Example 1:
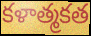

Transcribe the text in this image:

కళాత్మకత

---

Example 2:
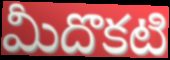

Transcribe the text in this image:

మీదొకటి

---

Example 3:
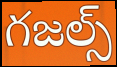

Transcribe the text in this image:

గజల్స్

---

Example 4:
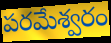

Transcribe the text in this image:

పరమేశ్వరం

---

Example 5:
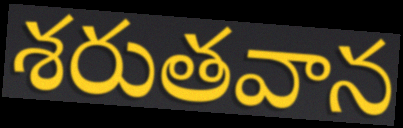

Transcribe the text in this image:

శరుతవాన